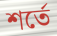
শর্তে